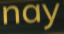
nay